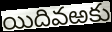
యిదివఱకు